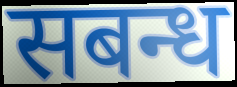
सबन्ध